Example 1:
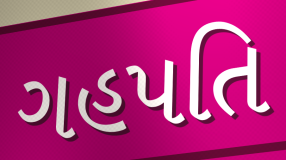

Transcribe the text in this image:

ગહપતિ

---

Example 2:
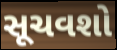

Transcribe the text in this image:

સૂચવશો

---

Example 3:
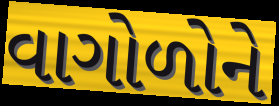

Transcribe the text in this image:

વાગોળોને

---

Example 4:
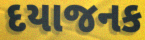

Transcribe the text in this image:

દયાજનક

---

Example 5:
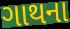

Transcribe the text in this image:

ગાથના